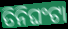
ତିନିଘଂଟା